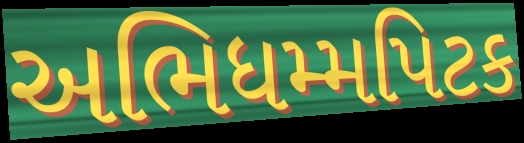
અભિધમ્મપિટક